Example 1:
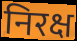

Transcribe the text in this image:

निरक्ष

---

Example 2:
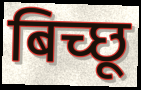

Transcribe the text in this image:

बिच्छू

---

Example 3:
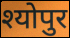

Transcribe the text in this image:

श्योपुर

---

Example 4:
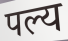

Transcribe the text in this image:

पल्य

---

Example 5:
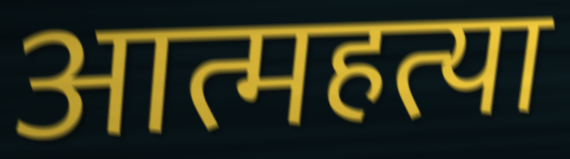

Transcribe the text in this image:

आत्‍महत्‍या